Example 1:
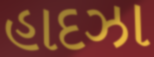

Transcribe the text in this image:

હાદઝા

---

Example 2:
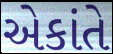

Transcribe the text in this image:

એકાંતે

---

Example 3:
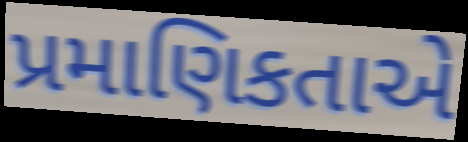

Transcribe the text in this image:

પ્રમાણિકતાએ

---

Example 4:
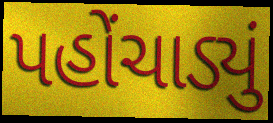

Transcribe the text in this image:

પહોંચાડ્યું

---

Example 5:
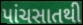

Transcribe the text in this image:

પાંચસાતથી